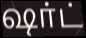
ஷர்ட்